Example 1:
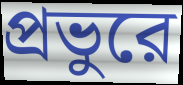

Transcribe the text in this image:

প্রভুরে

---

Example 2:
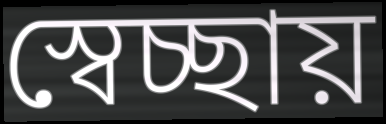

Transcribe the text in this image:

স্বেচ্ছায়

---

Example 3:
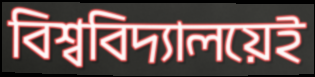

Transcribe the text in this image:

বিশ্ববিদ্যালয়েই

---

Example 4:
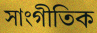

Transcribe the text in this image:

সাংগীতিক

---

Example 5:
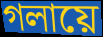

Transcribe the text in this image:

গলায়ে